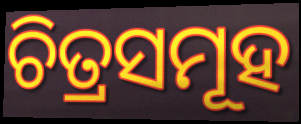
ଚିତ୍ରସମୂହ